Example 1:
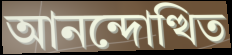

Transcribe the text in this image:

আনন্দোত্থিত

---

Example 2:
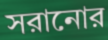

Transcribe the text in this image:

সরানোর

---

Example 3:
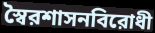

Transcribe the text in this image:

স্বৈরশাসনবিরোধী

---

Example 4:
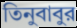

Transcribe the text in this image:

তিনুবাবুর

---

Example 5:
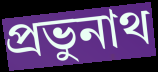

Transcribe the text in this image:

প্রভুনাথ